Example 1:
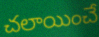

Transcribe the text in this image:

చలాయించే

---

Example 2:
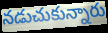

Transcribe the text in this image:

నడుచుకున్నారు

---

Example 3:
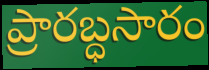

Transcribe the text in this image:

ప్రారబ్ధసారం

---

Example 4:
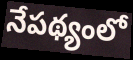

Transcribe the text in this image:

నేపథ్యంలో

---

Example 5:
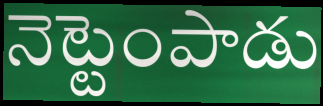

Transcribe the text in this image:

నెట్టెంపాడు